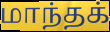
மாந்தக்